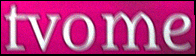
tvome